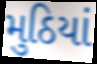
મુઠિયાં